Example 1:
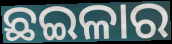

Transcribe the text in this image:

ଛଇଳାର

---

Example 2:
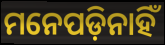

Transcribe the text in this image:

ମନେପଡ଼ିନାହିଁ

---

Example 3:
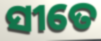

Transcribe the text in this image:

ସୀତେ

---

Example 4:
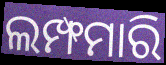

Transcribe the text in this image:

ଲମ୍ଫମାରି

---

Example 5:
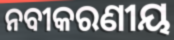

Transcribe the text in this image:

ନବୀକରଣୀୟ